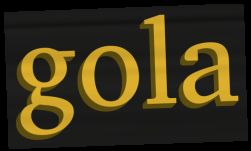
gola